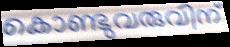
കൊണ്ടുവരുവിന്